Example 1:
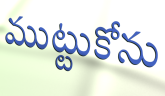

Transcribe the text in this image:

ముట్టుకోను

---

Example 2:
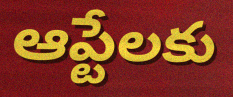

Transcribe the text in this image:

ఆప్టేలకు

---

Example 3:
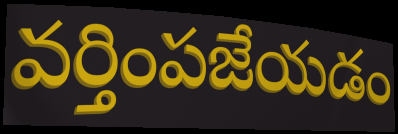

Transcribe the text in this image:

వర్తింపజేయడం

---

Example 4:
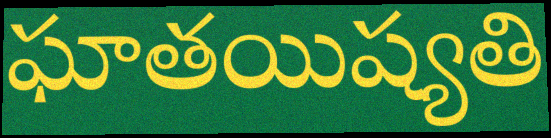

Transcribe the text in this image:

ఘాతయిష్యతి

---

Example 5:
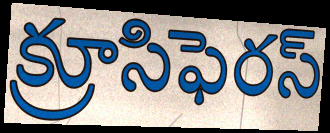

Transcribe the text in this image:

క్రూసిఫెరస్